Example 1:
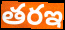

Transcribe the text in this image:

తరఇ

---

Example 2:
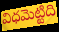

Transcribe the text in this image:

విధమెట్టిది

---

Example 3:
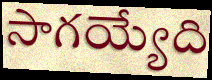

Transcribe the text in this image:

సాగయ్యేది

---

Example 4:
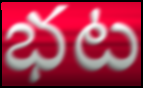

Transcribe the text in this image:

భట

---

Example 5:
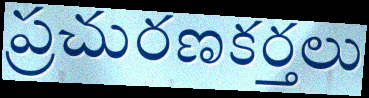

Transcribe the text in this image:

ప్రచురణకర్తలు